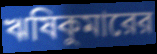
ঋষিকুমারের